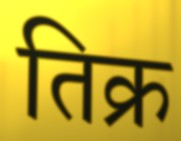
तिक्र